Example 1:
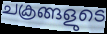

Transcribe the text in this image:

ചക്രങ്ങളുടെ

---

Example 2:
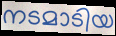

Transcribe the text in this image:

നടമാടിയ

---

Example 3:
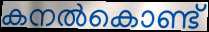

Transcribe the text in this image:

കനൽകൊണ്ട്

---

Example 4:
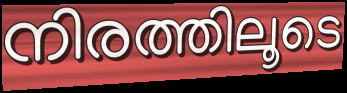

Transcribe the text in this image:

നിരത്തിലൂടെ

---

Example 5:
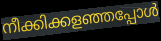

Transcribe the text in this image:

നീക്കിക്കളഞ്ഞപ്പോൾ